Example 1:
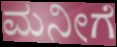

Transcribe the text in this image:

ಮನೀಗೆ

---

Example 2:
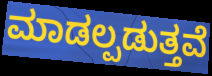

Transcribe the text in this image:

ಮಾಡಲ್ಪಡುತ್ತವೆ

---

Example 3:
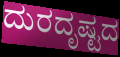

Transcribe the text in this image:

ದುರದೃಷ್ಟದ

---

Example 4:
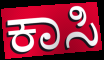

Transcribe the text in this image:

ಕಾಸಿ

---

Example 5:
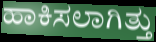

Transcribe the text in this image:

ಹಾಕಿಸಲಾಗಿತ್ತು